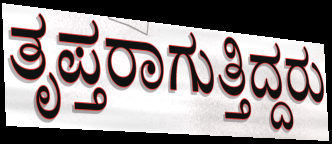
ತೃಪ್ತರಾಗುತ್ತಿದ್ದರು